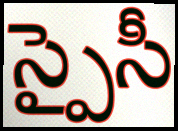
స్పైసీ